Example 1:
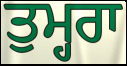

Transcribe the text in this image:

ਤੁਮ੍ਹਰਾ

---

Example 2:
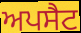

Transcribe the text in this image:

ਅਪਸੈਟ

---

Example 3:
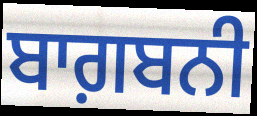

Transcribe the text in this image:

ਬਾਗ਼ਬਨੀ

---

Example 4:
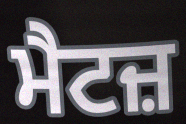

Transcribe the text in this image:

ਮੈਟਜ਼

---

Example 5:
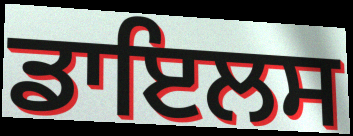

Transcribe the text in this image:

ਡਾਇਲਸ